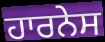
ਹਾਰਨੇਸ